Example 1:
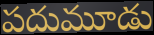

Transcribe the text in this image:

పదుమూడు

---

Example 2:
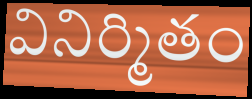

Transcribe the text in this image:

వినిర్మితం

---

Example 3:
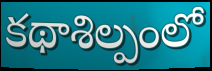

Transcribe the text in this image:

కథాశిల్పంలో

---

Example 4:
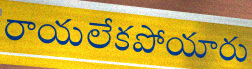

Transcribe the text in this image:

రాయలేకపోయారు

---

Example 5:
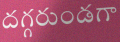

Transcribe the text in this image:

దగ్గరుండగా